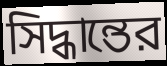
সিদ্ধান্তের